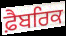
ਫ਼ੈਬਰਿਕ